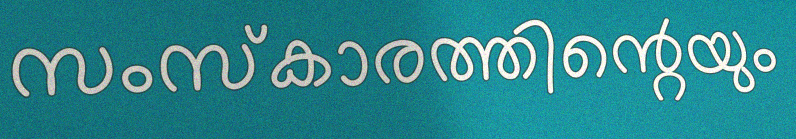
സംസ്കാരത്തിന്റെയും